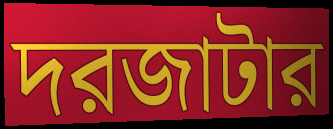
দরজাটার